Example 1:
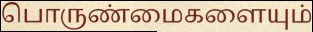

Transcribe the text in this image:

பொருண்மைகளையும்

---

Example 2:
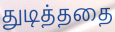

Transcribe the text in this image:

துடித்ததை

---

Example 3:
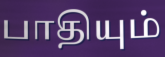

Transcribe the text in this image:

பாதியும்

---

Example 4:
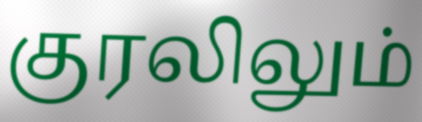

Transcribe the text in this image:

குரலிலும்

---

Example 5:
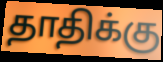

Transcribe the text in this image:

தாதிக்கு